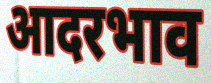
आदरभाव